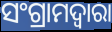
ସଂଗ୍ରାମଦ୍ଵାରା